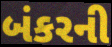
બંકરની